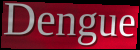
Dengue